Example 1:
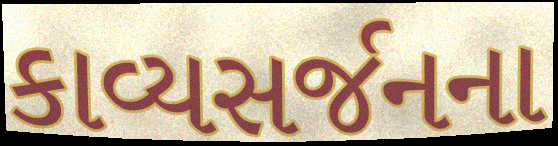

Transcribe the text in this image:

કાવ્યસર્જનના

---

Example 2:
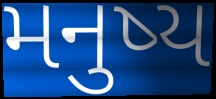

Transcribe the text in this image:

મનુષ્ય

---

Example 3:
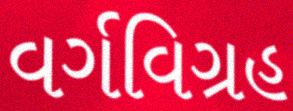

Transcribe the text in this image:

વર્ગવિગ્રહ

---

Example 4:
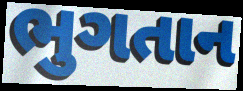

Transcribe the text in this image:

ભુગતાન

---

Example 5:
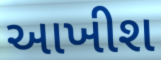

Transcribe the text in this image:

આખીશ